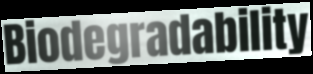
Biodegradability